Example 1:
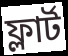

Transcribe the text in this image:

ফ্লার্ট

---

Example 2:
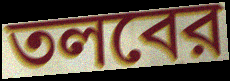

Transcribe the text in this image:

তলবের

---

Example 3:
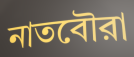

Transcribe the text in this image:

নাতবৌরা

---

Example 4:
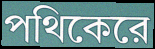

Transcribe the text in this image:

পথিকেরে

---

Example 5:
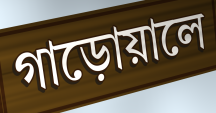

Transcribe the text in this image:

গাড়োয়ালে